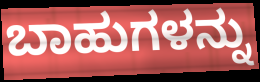
ಬಾಹುಗಳನ್ನು